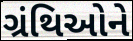
ગ્રંથિઓને